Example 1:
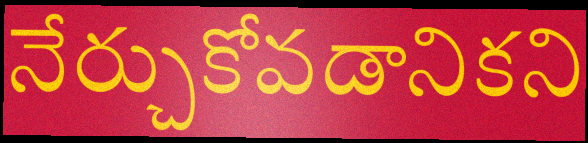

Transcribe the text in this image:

నేర్చుకోవడానికని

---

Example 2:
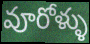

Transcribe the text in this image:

వూరోళ్ళు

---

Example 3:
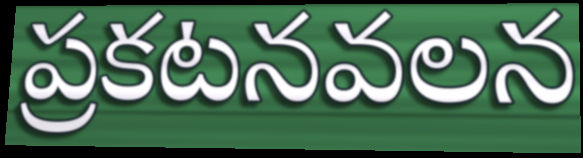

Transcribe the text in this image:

ప్రకటనవలన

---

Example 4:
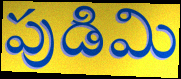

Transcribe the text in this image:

పుడిమి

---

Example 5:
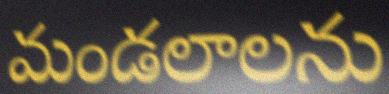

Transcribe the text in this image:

మండలాలను